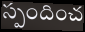
స్పందించ